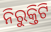
ନିରୁକ୍ତିଟି